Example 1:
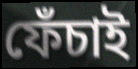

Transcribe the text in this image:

ফেঁচাই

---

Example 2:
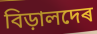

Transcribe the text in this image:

বিড়ালদেৰ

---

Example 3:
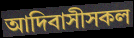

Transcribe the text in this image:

আদিবাসীসকল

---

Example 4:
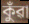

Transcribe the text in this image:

কুঁৱা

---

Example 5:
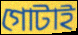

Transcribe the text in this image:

গোটাই